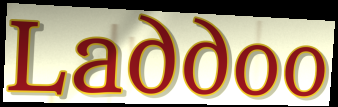
Laddoo